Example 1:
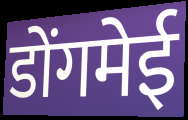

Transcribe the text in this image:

डोंगमेई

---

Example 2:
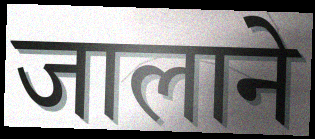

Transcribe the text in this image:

जालाने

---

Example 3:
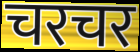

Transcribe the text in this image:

चरचर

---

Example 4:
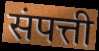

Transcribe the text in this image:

संपत्ती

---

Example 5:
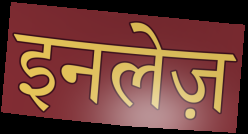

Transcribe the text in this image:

इनलेज़